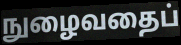
நுழைவதைப்